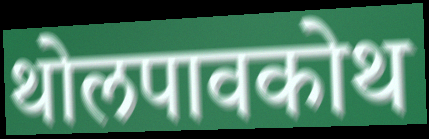
थोलपावकोथ